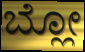
ಬ್ಲೋ